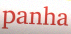
panha